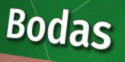
Bodas